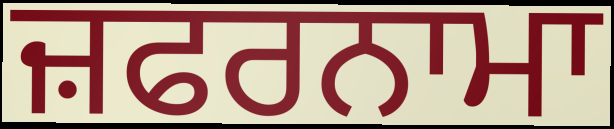
ਜ਼ਫਰਨਾਮਾ